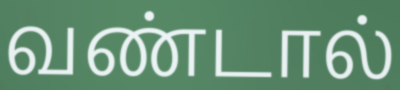
வண்டால்